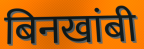
बिनखांबी